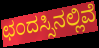
ಛಂದಸ್ಸಿನಲ್ಲಿವೆ